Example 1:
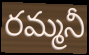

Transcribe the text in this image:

రమ్మనీ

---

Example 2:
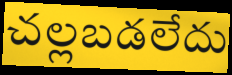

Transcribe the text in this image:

చల్లబడలేదు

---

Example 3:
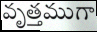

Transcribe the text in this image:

వృత్తముగా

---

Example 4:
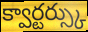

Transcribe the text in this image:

క్వార్టర్స్కు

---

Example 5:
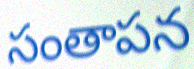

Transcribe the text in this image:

సంతాపన